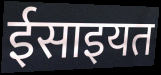
ईसाइयत